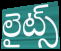
లైట్స్